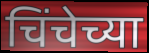
चिंचेच्या